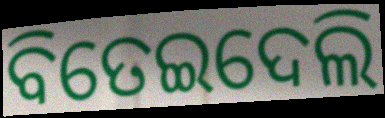
ବିତେଇଦେଲି